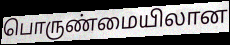
பொருண்மையிலான